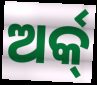
ଅର୍କ୍